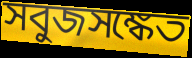
সবুজসঙ্কেত